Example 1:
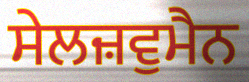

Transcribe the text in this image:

ਸੇਲਜ਼ਵੁਮੈਨ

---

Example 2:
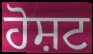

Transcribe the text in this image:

ਹੋਸ਼ਟ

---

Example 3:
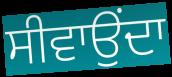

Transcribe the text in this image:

ਸੀਵਾਉਂਦਾ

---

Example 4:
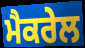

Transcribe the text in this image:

ਮੈਕਰੇਲ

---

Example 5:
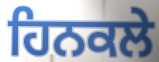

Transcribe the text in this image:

ਹਿਨਕਲੇ